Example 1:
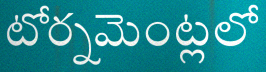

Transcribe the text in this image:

టోర్నమెంట్లలో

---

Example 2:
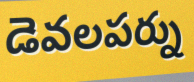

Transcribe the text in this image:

డెవలపర్ను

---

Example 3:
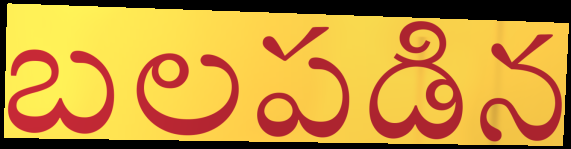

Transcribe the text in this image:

బలపడిన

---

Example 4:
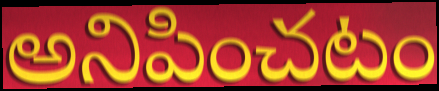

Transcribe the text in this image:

అనిపించటం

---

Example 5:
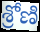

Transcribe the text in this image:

శ్రోణి